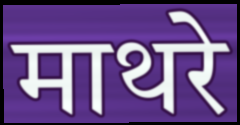
माथरे